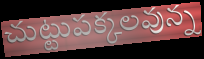
చుట్టుపక్కలవున్న